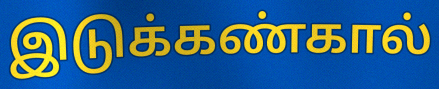
இடுக்கண்கால்